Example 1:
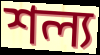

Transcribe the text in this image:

শল্য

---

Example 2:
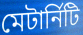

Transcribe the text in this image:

মেটার্নিটি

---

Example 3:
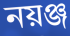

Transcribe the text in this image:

নয়ঞ্জ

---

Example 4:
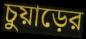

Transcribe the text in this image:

চুয়াড়ের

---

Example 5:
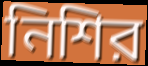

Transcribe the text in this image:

নিশির